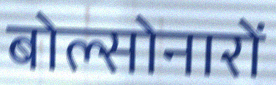
बोल्सोनारों